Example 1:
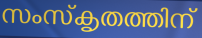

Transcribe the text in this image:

സംസ്‌കൃതത്തിന്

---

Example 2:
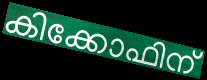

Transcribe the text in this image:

കിക്കോഫിന്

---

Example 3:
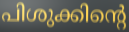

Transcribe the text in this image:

പിശുക്കിന്റെ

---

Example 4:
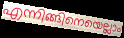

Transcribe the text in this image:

എന്നിങ്ങിനെയെല്ലാം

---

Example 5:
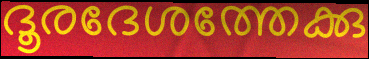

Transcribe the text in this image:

ദൂരദേശത്തേക്കു